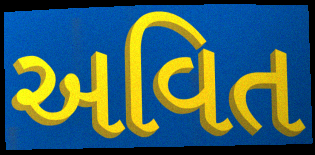
અવિત